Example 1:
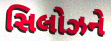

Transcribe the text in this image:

સિલોઝને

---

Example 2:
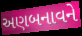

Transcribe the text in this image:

અણબનાવને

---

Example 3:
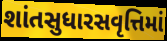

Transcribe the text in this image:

શાંતસુધારસવૃત્તિમાં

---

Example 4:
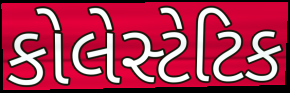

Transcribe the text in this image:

કોલેસ્ટેટિક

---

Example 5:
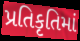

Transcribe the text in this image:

પ્રતિકૃતિમાં